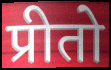
प्रीतो